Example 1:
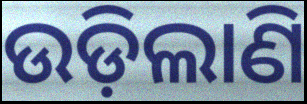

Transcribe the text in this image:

ଉଡ଼ିଲାଣି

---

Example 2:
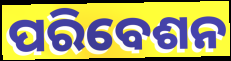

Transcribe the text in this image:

ପରିବେଶନ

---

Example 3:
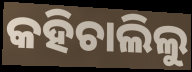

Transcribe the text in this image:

କହିଚାଲିଲୁ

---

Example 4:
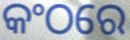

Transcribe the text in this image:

କଂଠରେ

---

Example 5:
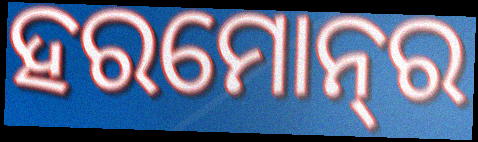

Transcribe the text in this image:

ହରମୋନ୍‍ର